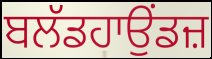
ਬਲੱਡਹਾਉਂਡਜ਼